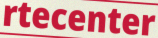
rtecenter